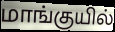
மாங்குயில்